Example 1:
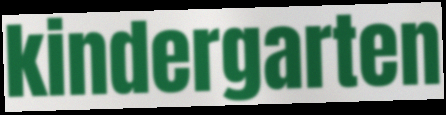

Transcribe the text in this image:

kindergarten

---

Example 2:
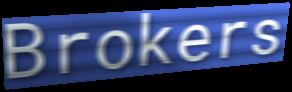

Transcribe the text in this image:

Brokers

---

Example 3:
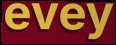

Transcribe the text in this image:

evey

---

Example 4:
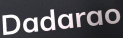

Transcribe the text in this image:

Dadarao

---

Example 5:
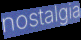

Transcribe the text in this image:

nostalgia